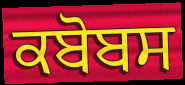
ਕਬੋਬਸ